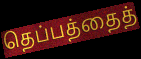
தெப்பத்தைத்